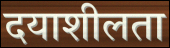
दयाशीलता